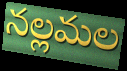
నల్లమల